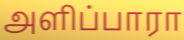
அளிப்பாரா